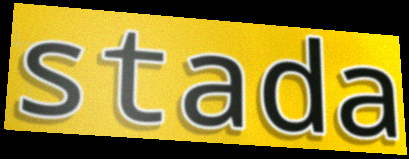
stada